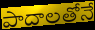
పాదాలతోనే